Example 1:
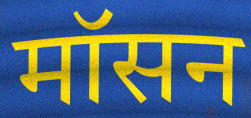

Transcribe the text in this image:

मॉसन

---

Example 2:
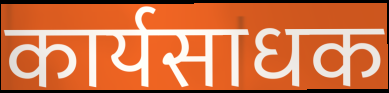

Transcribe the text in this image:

कार्यसाधक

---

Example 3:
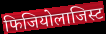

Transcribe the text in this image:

फिजियोलाजिस्ट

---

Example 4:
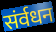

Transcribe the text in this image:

संर्वधन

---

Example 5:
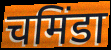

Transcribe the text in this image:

चमिंडा